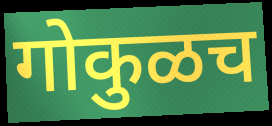
गोकुळच